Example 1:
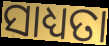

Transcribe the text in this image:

ସାଧ୍ୟତା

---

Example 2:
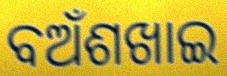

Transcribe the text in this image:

ବଅଁଶଖାଇ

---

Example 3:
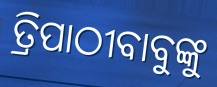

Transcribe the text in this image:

ତ୍ରିପାଠୀବାବୁଙ୍କୁ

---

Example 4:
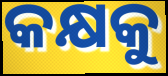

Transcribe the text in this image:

କକ୍ଷକୁ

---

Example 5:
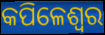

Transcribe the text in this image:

କପିଳେଶ୍ଵର